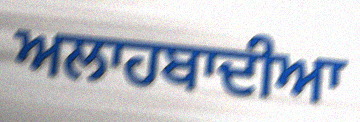
ਅਲਾਹਬਾਦੀਆ